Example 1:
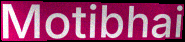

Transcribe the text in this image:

Motibhai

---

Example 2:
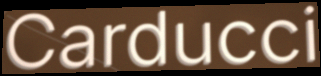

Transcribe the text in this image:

Carducci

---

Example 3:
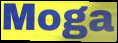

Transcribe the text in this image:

Moga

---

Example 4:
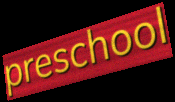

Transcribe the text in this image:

preschool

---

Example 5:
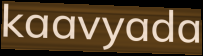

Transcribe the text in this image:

kaavyada